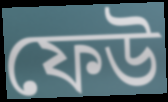
ফেউ